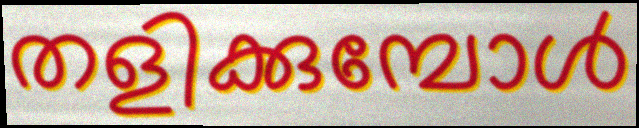
തളിക്കുമ്പോൾ